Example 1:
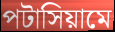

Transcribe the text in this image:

পটাসিয়ামে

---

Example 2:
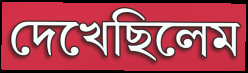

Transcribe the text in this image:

দেখেছিলেম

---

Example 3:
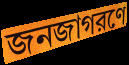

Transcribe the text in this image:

জনজাগরণে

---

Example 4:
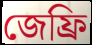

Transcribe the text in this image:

জেফ্রি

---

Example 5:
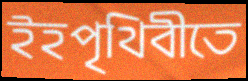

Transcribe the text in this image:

ইহপৃথিবীতে